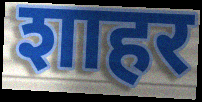
शाहर